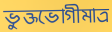
ভুক্তভোগীমাত্র